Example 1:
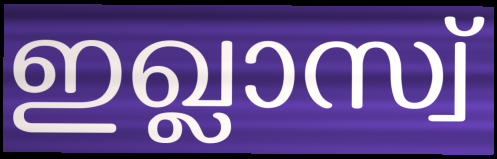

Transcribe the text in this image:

ഇഖ്ലാസ്വ്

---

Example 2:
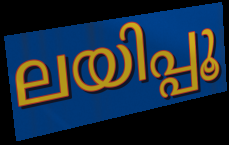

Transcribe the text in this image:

ലയിപ്പൂ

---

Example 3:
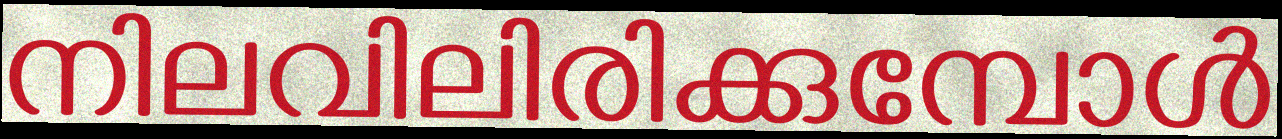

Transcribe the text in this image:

നിലവിലിരിക്കുമ്പോൾ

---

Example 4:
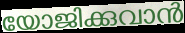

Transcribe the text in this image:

യോജിക്കുവാൻ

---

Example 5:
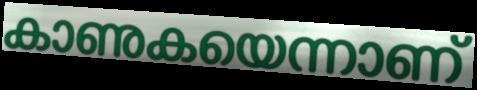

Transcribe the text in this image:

കാണുകയെന്നാണ്